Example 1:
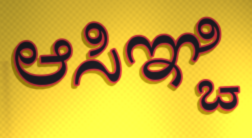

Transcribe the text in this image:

ಆಸಿಞ್ಚಿ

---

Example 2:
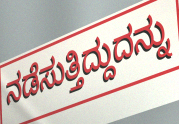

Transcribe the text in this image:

ನಡೆಸುತ್ತಿದ್ದುದನ್ನು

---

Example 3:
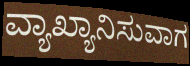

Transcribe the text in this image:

ವ್ಯಾಖ್ಯಾನಿಸುವಾಗ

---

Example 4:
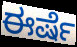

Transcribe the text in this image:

ಈರ್ಷೆ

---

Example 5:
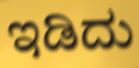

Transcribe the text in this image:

ಇಡಿದು